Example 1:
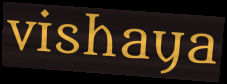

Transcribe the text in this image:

vishaya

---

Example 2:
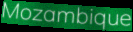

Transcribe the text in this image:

Mozambique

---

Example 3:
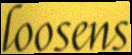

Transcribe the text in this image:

loosens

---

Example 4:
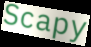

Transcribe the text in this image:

Scapy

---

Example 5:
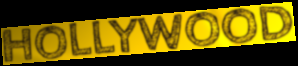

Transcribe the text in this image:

HOLLYWOOD